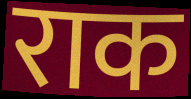
राक